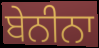
ਬੇਨੀਨਾ